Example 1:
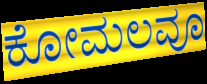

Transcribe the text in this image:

ಕೋಮಲವೂ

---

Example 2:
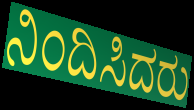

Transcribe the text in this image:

ನಿಂದಿಸಿದರು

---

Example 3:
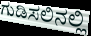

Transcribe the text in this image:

ಗುಡಿಸಲಿನಲ್ಲಿ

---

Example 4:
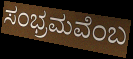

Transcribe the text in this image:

ಸಂಭ್ರಮವೆಂಬ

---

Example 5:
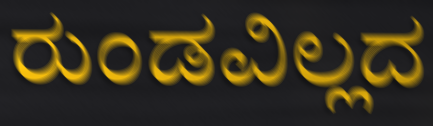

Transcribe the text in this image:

ರುಂಡವಿಲ್ಲದ